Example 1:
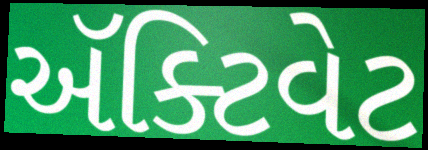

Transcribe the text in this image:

ઍક્ટિવેટ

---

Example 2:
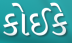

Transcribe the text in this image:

કોઈકે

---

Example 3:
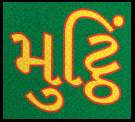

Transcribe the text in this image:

મુટ્ઠિં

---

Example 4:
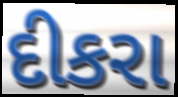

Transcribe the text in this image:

દીકરા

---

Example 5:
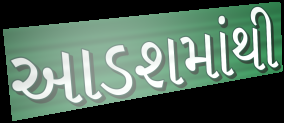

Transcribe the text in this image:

આડશમાંથી